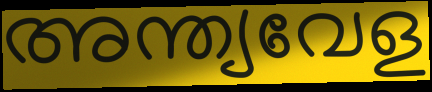
അന്ത്യവേള